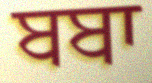
ਬਬਾ